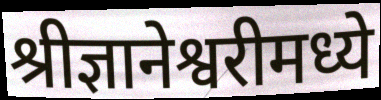
श्रीज्ञानेश्वरीमध्ये